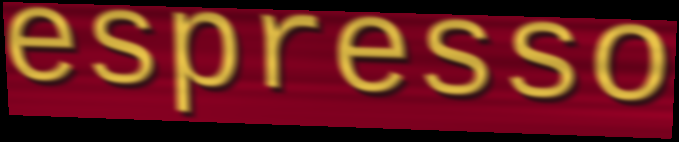
espresso